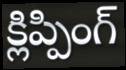
క్లిప్పింగ్